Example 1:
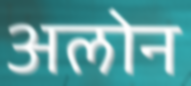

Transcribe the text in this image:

अलोन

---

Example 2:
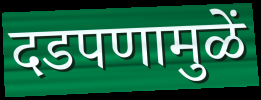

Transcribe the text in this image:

दडपणामुळें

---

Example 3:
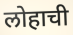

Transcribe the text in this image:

लोहाची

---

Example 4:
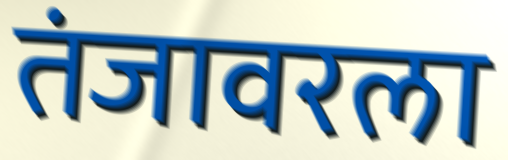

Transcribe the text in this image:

तंजावरला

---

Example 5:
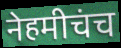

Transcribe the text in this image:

नेहमीचंच